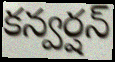
కన్వర్షన్